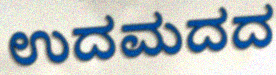
ಉದಮದದ